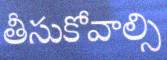
తీసుకోవాల్సి